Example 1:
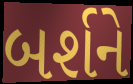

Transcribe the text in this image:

બર્શને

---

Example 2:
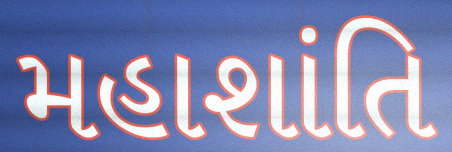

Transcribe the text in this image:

મહાશાંતિ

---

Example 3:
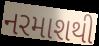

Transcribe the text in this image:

નરમાશથી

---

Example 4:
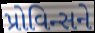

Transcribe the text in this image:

પ્રોવિન્સને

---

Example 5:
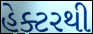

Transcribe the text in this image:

હેક્ટરથી